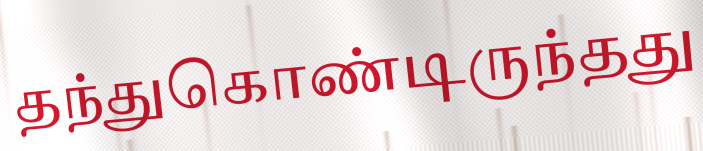
தந்துகொண்டிருந்தது